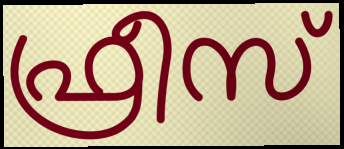
ഫ്രീസ്